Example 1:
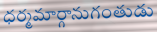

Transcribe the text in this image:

ధర్మమార్గానుగంతుడు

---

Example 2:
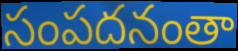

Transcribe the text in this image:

సంపదనంతా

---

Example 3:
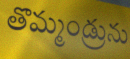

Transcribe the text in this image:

తొమ్మండ్రును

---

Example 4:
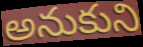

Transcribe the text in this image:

అనుకుని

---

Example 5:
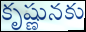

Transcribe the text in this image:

కృష్ణునకు